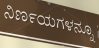
ನಿರ್ಣಯಗಳನ್ನೂ